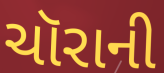
ચૉરાની